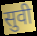
सुवी